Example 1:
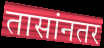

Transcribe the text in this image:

तासांनतर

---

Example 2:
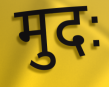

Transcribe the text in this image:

मुदः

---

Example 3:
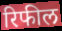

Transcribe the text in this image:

रिफील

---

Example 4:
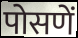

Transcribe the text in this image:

पोसणें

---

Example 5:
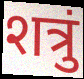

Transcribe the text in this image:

शत्रुं